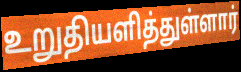
உறுதியளித்துள்ளார்